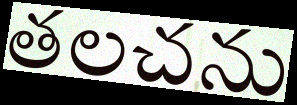
తలచను